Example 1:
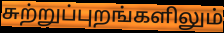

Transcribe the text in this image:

சுற்றுப்புறங்களிலும்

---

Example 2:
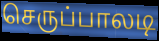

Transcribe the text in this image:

செருப்பாலடி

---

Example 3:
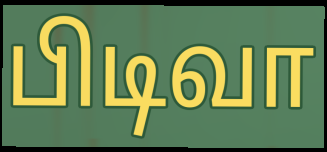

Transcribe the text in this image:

பிடிவா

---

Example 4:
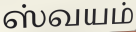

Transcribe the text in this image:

ஸ்வயம்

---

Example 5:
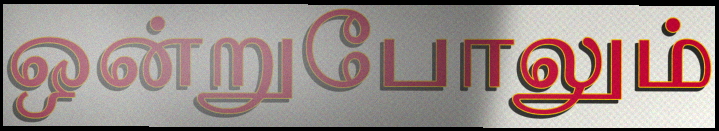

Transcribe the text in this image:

ஒன்றுபோலும்